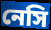
নেসি